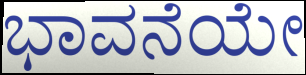
ಭಾವನೆಯೇ